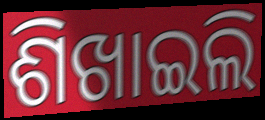
ଶିଖାଇଲି